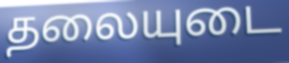
தலையுடை